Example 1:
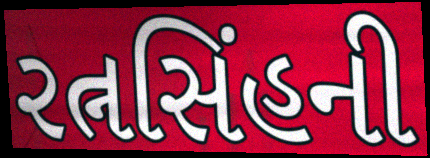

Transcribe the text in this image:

રત્નસિંહની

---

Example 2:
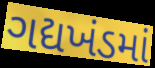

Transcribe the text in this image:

ગદ્યખંડમાં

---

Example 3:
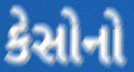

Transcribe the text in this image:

કેસોનો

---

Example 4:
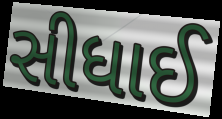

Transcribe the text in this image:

સીધાઈ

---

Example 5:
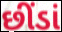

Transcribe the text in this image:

છીંડાં